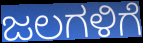
ಜಲಗಳಿಗೆ